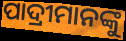
ପାଦ୍ରୀମାନଙ୍କୁ